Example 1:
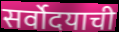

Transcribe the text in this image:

सर्वोदयाची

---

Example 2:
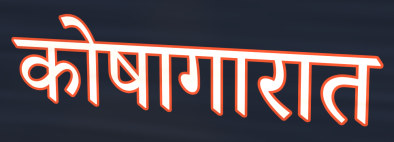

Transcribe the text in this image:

कोषागारात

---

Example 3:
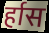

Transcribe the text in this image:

र्हास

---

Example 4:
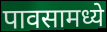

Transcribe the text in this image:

पावसामध्ये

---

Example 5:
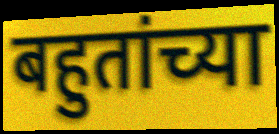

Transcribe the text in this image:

बहुतांच्या